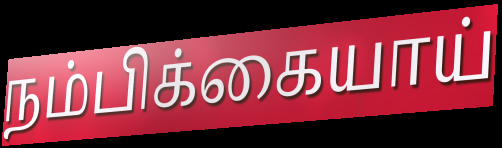
நம்பிக்கையாய்